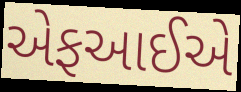
એફઆઈએ